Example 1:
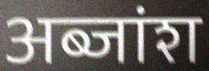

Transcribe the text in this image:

अब्जांश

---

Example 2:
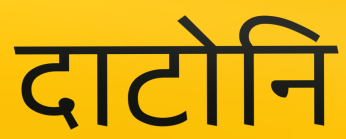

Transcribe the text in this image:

दाटोनि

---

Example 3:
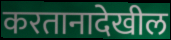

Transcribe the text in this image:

करतानादेखील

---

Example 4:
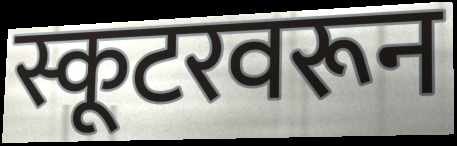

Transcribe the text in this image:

स्कूटरवरून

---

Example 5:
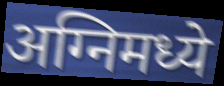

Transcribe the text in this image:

अग्निमध्ये